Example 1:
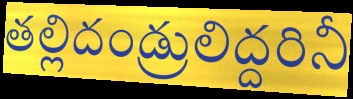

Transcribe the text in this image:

తల్లిదండ్రులిద్దరినీ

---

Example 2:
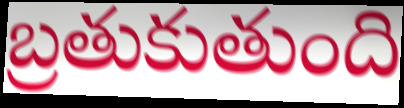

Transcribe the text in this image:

బ్రతుకుతుంది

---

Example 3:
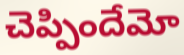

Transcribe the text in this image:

చెప్పిందేమో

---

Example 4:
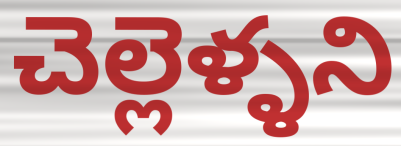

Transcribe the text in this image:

చెల్లెళ్ళని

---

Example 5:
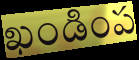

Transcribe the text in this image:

ఖండింప